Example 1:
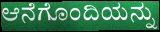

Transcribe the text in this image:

ಆನೆಗೊಂದಿಯನ್ನು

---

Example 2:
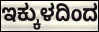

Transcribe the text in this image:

ಇಕ್ಕುಳದಿಂದ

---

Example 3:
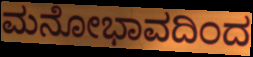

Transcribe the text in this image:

ಮನೋಭಾವದಿಂದ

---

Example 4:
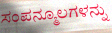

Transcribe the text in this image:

ಸಂಪನ್ಮೂಲಗಳನ್ನು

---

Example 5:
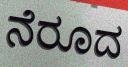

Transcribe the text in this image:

ನೆರೂದ